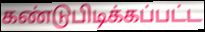
கண்டுபிடிக்கப்பட்ட